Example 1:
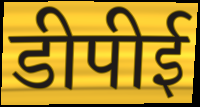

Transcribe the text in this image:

डीपीई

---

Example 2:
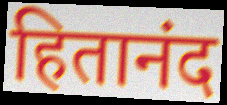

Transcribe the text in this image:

हितानंद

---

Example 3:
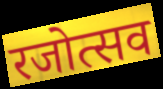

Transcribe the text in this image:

रजोत्सव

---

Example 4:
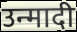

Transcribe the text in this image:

उन्मादी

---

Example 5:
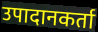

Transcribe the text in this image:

उपादानकर्ता